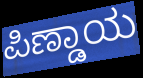
ಪಿಣ್ಡಾಯ